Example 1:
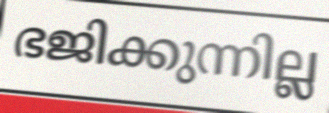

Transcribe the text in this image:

ഭജിക്കുന്നില്ല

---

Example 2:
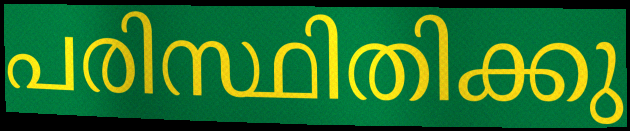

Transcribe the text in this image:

പരിസ്ഥിതിക്കു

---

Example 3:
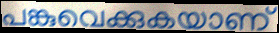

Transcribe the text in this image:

പങ്കുവെക്കുകയാണ്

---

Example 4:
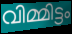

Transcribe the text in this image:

വിമ്മിട്ടം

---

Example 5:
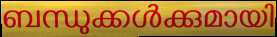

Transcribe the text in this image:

ബന്ധുക്കൾക്കുമായി